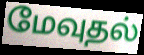
மேவுதல்